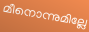
മീനൊന്നുമില്ലേ